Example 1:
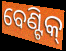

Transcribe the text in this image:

ବେଣ୍ଟିକ୍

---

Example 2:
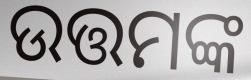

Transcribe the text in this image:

ଉତ୍ତମଙ୍କ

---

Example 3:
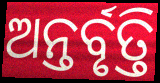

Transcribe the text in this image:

ଅନ୍ତର୍ବୃତ୍ତି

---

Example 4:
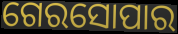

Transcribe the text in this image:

ଗେରସୋପାର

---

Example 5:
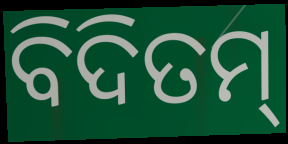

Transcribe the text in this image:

ବିଦିତମ୍